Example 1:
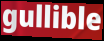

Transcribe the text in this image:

gullible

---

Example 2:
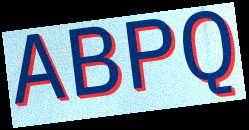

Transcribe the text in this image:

ABPQ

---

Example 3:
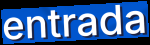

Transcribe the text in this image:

entrada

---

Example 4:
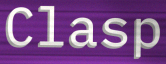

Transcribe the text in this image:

Clasp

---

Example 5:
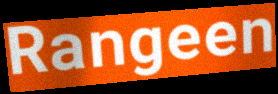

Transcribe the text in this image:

Rangeen